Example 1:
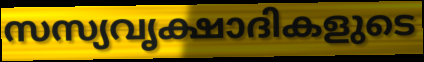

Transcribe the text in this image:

സസ്യവൃക്ഷാദികളുടെ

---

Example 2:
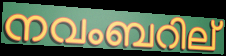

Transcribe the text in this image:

നവംബറില്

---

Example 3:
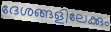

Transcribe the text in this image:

ദേശങ്ങളിലേക്കും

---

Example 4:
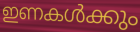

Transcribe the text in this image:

ഇണകൾക്കും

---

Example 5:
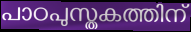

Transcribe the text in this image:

പാഠപുസ്തകത്തിന്